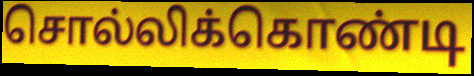
சொல்லிக்கொண்டி